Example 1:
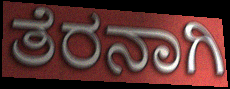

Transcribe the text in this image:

ತೆರನಾಗಿ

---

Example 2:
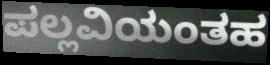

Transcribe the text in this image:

ಪಲ್ಲವಿಯಂತಹ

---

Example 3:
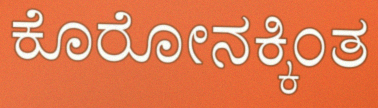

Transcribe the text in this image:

ಕೊರೋನಕ್ಕಿಂತ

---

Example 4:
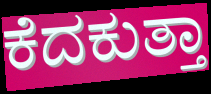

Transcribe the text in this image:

ಕೆದಕುತ್ತಾ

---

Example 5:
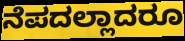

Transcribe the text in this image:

ನೆಪದಲ್ಲಾದರೂ